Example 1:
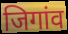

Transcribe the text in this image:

जिगांव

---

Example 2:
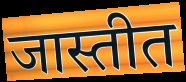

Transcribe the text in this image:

जास्तीत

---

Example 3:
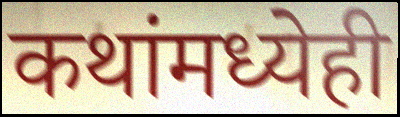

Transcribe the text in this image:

कथांमध्येही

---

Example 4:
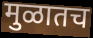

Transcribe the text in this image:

मुळातच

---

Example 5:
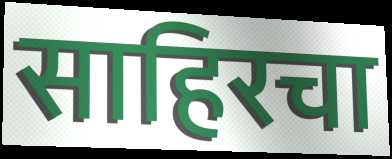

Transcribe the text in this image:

साहिरचा